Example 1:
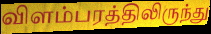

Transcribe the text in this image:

விளம்பரத்திலிருந்து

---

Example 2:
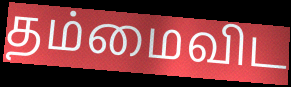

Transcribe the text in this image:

தம்மைவிட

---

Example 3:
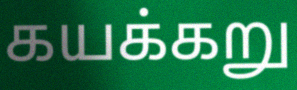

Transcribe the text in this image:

கயக்கறு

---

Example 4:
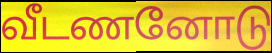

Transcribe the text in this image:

வீடணனோடு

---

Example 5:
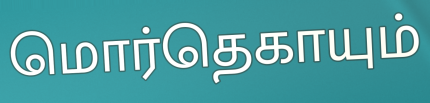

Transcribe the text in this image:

மொர்தெகாயும்